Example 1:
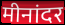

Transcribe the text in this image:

मीनांदर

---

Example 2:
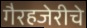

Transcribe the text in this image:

गैरहजेरीचे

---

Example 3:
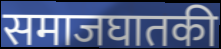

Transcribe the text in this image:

समाजघातकी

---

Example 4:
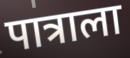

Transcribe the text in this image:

पात्राला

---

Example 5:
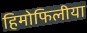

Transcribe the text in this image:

हिमोफिलीया